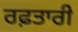
ਰਫ਼ਤਾਰੀ